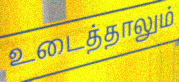
உடைத்தாலும்